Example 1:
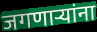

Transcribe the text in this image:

जगणाऱ्यांना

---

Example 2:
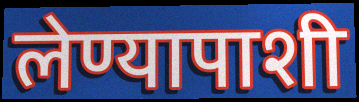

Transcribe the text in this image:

लेण्यापाशी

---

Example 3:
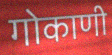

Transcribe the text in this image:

गोकाणी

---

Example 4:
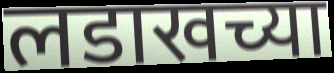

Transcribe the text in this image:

लडाखच्या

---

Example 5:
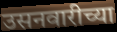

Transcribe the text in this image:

उसनवारीच्या